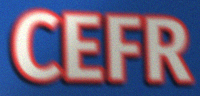
CEFR